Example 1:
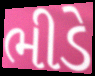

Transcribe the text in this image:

ભીડે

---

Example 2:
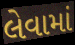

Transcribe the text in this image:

લેવામાં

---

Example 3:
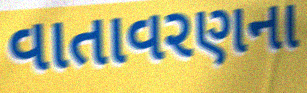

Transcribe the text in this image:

વાતાવરણના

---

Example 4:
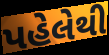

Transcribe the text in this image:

પહેલેથી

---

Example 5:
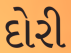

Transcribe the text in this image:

દોરી